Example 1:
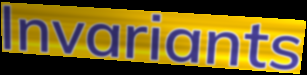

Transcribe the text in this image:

Invariants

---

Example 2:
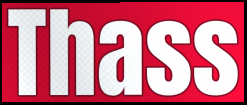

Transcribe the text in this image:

Thass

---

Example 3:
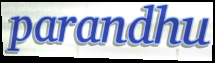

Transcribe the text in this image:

parandhu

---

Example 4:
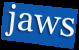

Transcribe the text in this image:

jaws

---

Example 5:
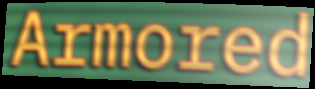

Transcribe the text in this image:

Armored